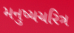
મનુષ્યચરિત્ર